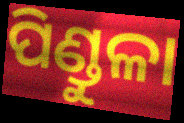
ପିଣ୍ଡୁଳା